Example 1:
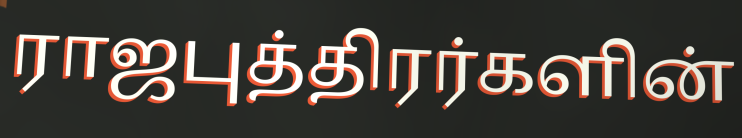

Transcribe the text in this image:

ராஜபுத்திரர்களின்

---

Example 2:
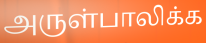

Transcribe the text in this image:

அருள்பாலிக்க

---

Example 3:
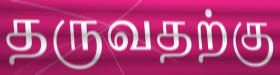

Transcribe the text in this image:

தருவதற்கு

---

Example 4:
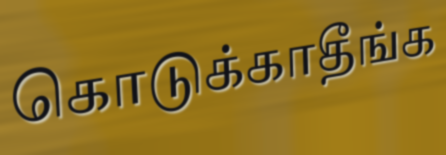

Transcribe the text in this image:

கொடுக்காதீங்க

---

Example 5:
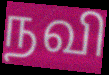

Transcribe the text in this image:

நவி